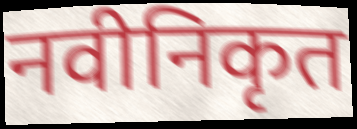
नवीनिकृत